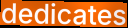
dedicates